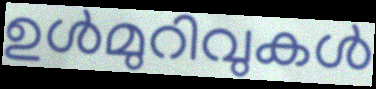
ഉൾമുറിവുകൾ